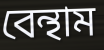
বেন্থাম